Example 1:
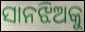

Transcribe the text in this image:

ସାନଝିଅକୁ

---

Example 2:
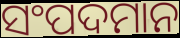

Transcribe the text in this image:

ସଂପଦମାନ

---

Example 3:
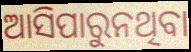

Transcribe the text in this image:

ଆସିପାରୁନଥିବା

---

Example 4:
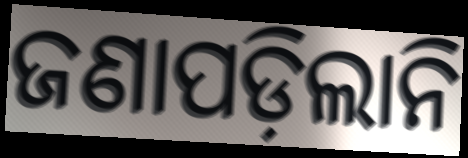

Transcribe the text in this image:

ଜଣାପଡ଼ିଲାନି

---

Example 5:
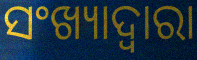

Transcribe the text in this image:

ସଂଖ୍ୟାଦ୍ଵାରା